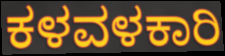
ಕಳವಳಕಾರಿ